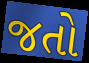
જતો